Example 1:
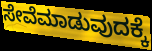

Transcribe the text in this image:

ಸೇವೆಮಾಡುವುದಕ್ಕೆ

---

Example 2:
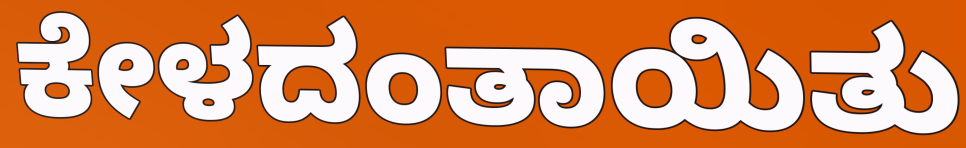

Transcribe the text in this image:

ಕೇಳದಂತಾಯಿತು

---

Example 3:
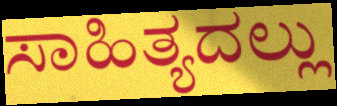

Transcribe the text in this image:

ಸಾಹಿತ್ಯದಲ್ಲು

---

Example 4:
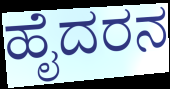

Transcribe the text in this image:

ಹೈದರನ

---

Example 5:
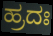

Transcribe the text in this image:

ಹ್ರದಃ